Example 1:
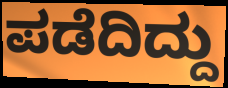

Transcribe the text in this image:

ಪಡೆದಿದ್ದು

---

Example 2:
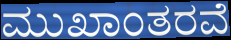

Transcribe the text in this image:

ಮುಖಾಂತರವೆ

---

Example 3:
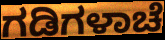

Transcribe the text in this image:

ಗಡಿಗಳಾಚೆ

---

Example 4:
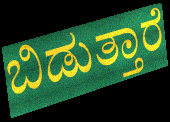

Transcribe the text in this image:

ಬಿಡುತ್ತಾರೆ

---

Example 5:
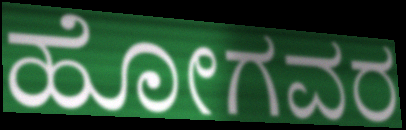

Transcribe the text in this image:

ಹೋಗವರ